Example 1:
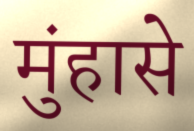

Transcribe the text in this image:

मुंहासे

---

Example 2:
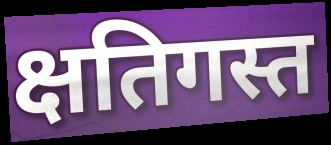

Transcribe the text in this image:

क्षतिगस्त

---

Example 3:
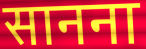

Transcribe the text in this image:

सानना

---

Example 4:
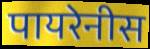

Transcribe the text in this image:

पायरेनीस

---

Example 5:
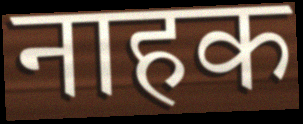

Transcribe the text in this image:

नाहक